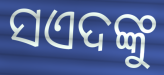
ସଏଦଙ୍କୁ